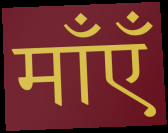
माँएँ